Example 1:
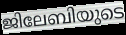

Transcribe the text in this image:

ജിലേബിയുടെ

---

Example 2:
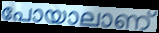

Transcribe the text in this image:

പോയാലാണ്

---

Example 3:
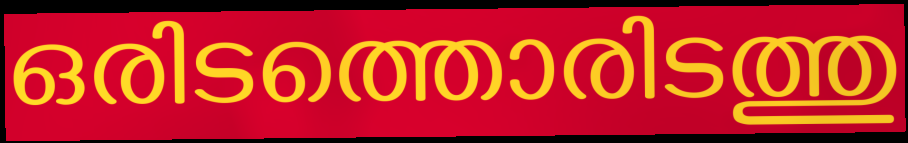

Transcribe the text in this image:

ഒരിടത്തൊരിടത്തു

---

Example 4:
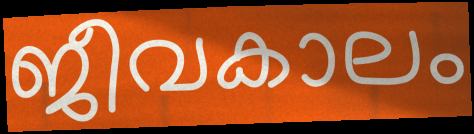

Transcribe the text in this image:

ജീവകാലം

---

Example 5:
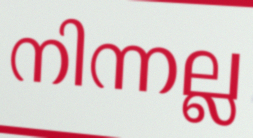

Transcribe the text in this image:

നിന്നല്ല